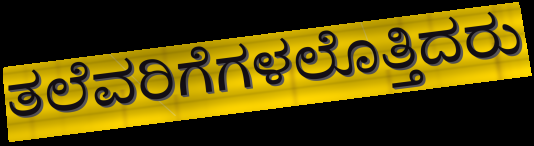
ತಲೆವರಿಗೆಗಳಲೊತ್ತಿದರು